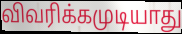
விவரிக்கமுடியாது